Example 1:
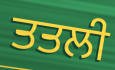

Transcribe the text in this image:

ਤਤਲੀ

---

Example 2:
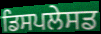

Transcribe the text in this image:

ਡਿਸਪਲੇਸਡ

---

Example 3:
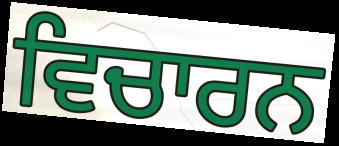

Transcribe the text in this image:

ਵਿਚਾਰਨ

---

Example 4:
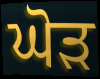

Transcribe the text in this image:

ਘੋੜ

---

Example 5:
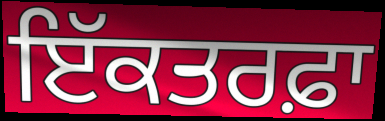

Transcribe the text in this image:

ਇੱਕਤਰਫ਼ਾ